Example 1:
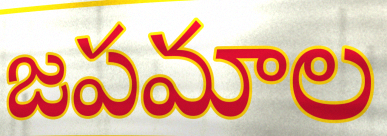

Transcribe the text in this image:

జపమాల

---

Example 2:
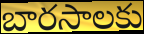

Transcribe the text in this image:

బారసాలకు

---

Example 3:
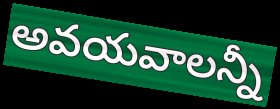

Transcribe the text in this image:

అవయవాలన్నీ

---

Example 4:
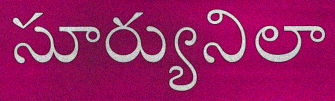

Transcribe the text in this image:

సూర్యునిలా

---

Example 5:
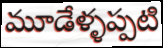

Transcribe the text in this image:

మూడేళ్ళప్పటి